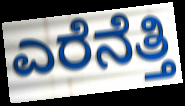
ಎರೆನೆತ್ತಿ